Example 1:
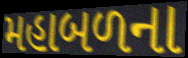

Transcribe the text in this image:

મહાબળના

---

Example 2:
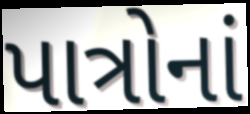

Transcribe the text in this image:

પાત્રોનાં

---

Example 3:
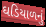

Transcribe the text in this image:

ઘડિયાળનું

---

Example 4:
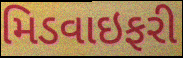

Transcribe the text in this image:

મિડવાઇફરી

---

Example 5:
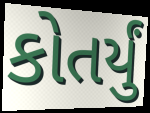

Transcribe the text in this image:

કોતર્યું